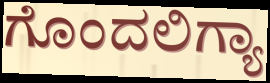
ಗೊಂದಲಿಗ್ಯಾ